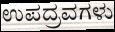
ಉಪದ್ರವಗಳು